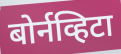
बोर्नव्हिटा